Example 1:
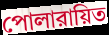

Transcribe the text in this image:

পোলারায়িত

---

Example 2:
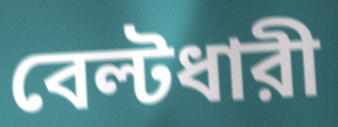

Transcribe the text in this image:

বেল্টধারী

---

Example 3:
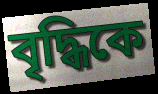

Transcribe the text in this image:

বৃদ্ধিকে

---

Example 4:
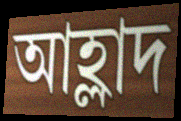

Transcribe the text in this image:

আহ্লাদ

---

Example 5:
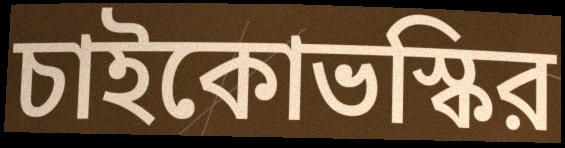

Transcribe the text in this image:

চাইকোভস্কির